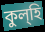
কুল্হি